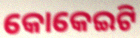
କୋକେଇଟି